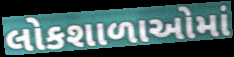
લોકશાળાઓમાં